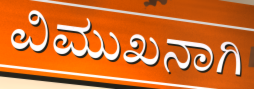
ವಿಮುಖನಾಗಿ